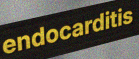
endocarditis